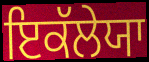
ਇਕੱਲੇਯਾ